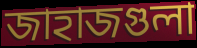
জাহাজগুলা